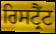
ਰਿਸਟ੍ਰੈਂਟ